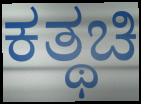
ಕತ್ಥಚಿ